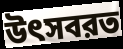
উৎসবরত